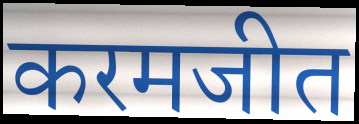
करमजीत